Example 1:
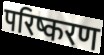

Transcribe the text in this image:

परिष्करण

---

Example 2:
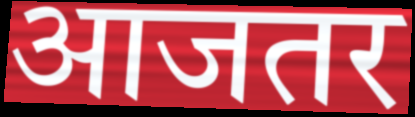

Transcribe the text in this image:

आजतर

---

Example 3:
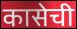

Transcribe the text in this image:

कासेची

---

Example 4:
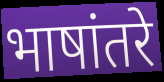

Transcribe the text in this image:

भाषांतरे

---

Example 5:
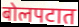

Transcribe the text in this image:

बोलपटात